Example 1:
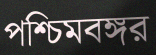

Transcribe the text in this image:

পশ্চিমবঙ্গর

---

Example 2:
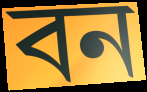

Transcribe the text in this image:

বন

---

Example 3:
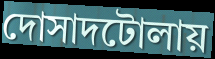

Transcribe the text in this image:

দোসাদটোলায়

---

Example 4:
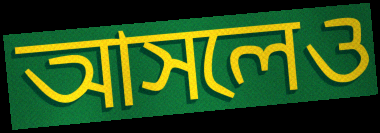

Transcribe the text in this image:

আসলেও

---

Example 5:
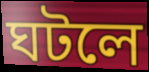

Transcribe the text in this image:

ঘটলে